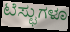
ಟೆಸ್ಟುಗಳೂ